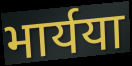
भार्यया